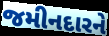
જમીનદારને